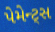
પેમેન્ટ્સ